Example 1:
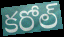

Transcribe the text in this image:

కరోల్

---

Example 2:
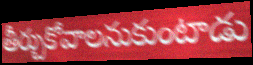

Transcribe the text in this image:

తీర్చుకోవాలనుకుంటాడు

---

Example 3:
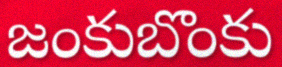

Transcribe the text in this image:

జంకుబొంకు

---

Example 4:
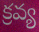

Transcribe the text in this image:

క్రవ్య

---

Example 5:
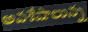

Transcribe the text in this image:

అవశేషాలున్న